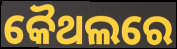
କୈଥଲରେ